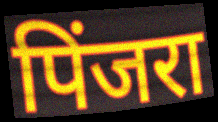
पिंजरा